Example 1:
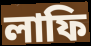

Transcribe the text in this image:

লাফি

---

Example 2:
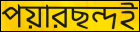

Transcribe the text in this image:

পয়ারছন্দই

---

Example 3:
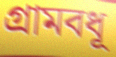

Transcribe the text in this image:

গ্রামবধূ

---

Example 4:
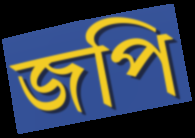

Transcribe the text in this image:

জপি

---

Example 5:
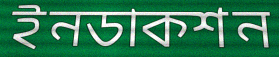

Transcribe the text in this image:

ইনডাকশন